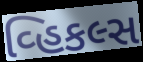
વ્હિકલ્સ